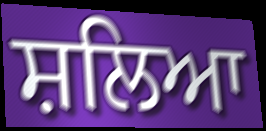
ਸ਼ਲਿਆ